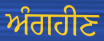
ਅੰਗਹੀਣ